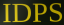
IDPS